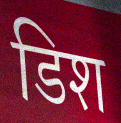
डिश